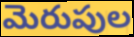
మెరుపుల